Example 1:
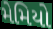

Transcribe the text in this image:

મેમિયો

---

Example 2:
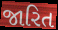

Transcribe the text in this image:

જારિત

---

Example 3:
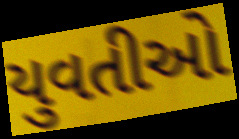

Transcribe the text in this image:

યુવતીઓ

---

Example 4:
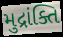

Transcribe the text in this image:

મુદ્રાંક્તિ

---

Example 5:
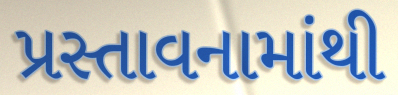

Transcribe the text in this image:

પ્રસ્તાવનામાંથી